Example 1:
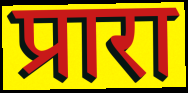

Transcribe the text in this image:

प्रारा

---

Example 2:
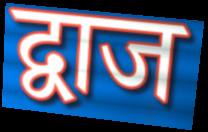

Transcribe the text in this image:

द्वाज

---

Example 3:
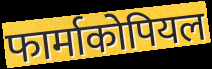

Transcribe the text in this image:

फार्माकोपियल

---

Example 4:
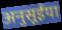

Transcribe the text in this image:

अनुसूईया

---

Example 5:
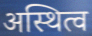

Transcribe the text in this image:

अस्थित्व